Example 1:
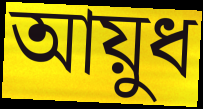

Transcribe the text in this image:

আয়ুধ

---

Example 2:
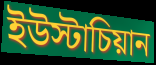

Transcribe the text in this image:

ইউস্টাচিয়ান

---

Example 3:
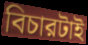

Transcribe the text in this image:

বিচারটাই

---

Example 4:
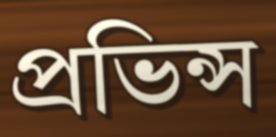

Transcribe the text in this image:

প্রভিন্স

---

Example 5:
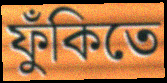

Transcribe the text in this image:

ফুঁকিতে